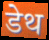
डेथ